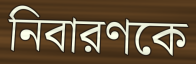
নিবারণকে